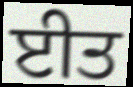
ਈਤ